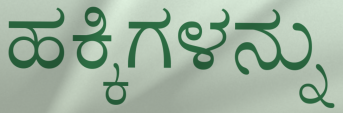
ಹಕ್ಕಿಗಳನ್ನು